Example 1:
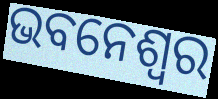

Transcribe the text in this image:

ଭବନେଶ୍ୱର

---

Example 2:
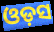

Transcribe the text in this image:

ଓଡ଼ସ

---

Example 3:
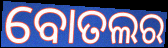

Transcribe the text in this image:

ବୋତଲର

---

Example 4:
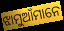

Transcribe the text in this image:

ଝାମୁଆଁମାନେ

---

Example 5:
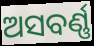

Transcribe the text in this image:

ଅସବର୍ଣ୍ଣ